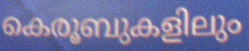
കെരൂബുകളിലും